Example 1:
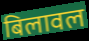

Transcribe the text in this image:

बिलावल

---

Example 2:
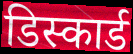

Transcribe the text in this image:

डिस्कार्ड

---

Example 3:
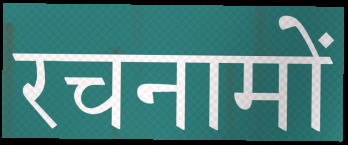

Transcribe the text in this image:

रचनामों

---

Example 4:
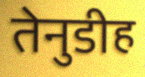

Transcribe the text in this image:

तेनुडीह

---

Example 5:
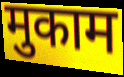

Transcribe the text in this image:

मुकाम